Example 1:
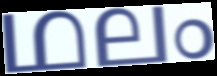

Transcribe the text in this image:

ഥലം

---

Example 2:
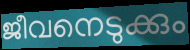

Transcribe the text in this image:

ജീവനെടുക്കും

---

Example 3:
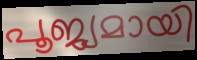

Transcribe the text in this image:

പൂജ്യമായി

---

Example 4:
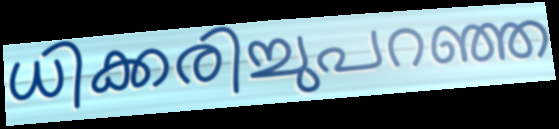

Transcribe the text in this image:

ധിക്കരിച്ചുപറഞ്ഞ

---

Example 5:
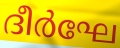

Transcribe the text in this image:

ദീർഘേ